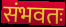
संभवतः